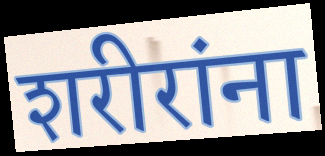
शरीरांना